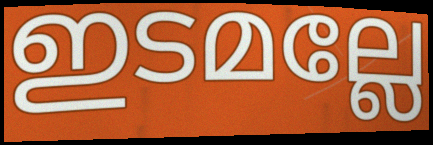
ഇടമല്ലേ